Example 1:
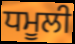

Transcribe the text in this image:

ਧਮੂਲੀ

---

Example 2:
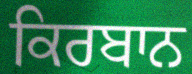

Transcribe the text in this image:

ਕਿਰਬਾਨ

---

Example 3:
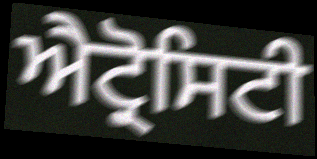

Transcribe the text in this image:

ਐਟ੍ਰੋਸਿਟੀ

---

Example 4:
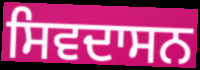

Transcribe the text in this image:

ਸਿਵਦਾਸਨ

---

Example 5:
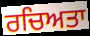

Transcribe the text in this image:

ਰਚਿਅਤਾ